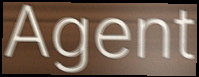
Agent